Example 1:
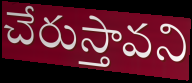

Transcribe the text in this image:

చేరుస్తావని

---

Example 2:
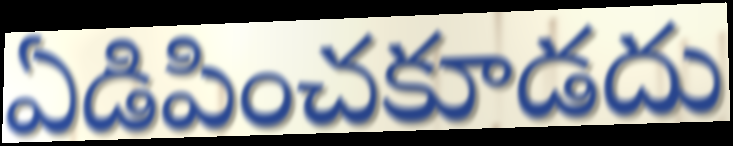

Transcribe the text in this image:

ఏడిపించకూడదు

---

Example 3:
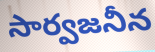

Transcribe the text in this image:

సార్వజనీన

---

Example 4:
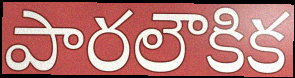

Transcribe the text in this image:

పారలౌకిక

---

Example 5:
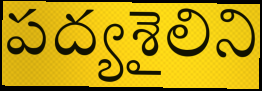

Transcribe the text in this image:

పద్యశైలిని